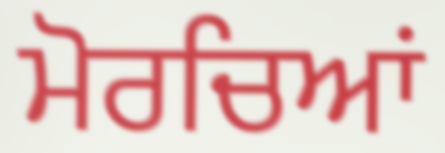
ਮੋਰਚਿਆਂ